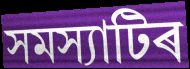
সমস্যাটিৰ